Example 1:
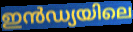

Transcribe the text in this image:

ഇൻഡ്യയിലെ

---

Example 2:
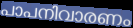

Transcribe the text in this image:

പാപനിവാരണം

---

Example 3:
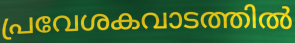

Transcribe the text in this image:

പ്രവേശകവാടത്തിൽ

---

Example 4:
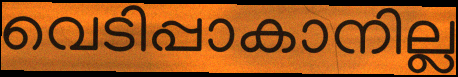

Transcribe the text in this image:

വെടിപ്പാകാനില്ല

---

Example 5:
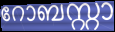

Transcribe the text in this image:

റോബസ്റ്റാ